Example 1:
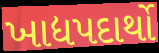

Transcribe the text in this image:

ખાદ્યપદાર્થો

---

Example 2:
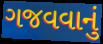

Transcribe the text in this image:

ગજવવાનું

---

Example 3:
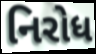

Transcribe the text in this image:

નિરોધ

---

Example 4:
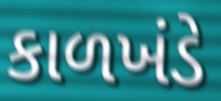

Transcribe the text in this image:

કાળખંડે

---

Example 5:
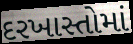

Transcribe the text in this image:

દરખાસ્તોમાં